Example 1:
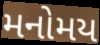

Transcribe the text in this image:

મનોમય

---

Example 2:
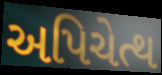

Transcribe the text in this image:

અપિચેત્થ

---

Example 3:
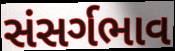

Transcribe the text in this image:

સંસર્ગભાવ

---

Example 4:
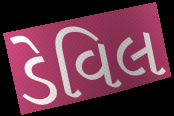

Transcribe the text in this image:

ડેવિલ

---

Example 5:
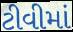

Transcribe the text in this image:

ટીવીમાં